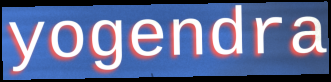
yogendra